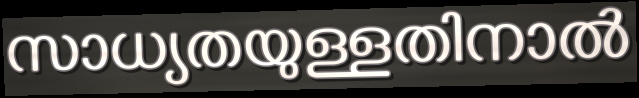
സാധ്യതയുള്ളതിനാൽ